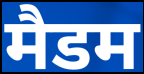
मैडम